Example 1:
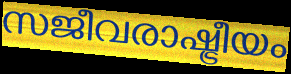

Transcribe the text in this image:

സജീവരാഷ്ട്രീയം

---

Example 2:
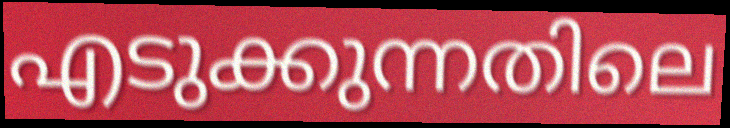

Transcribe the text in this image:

എടുക്കുന്നതിലെ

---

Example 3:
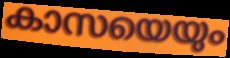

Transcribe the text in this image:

കാസയെയും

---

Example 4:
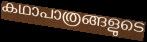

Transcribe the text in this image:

കഥാപാത്രങ്ങളുടെ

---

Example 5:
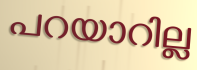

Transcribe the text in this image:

പറയാറില്ല